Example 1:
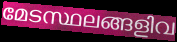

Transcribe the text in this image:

മേടസ്ഥലങ്ങളിവ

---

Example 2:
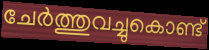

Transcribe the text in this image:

ചേർത്തുവച്ചുകൊണ്ട്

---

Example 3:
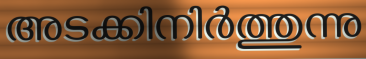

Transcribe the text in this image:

അടക്കിനിർത്തുന്നു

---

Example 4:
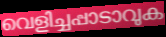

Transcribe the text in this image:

വെളിച്ചപ്പാടാവുക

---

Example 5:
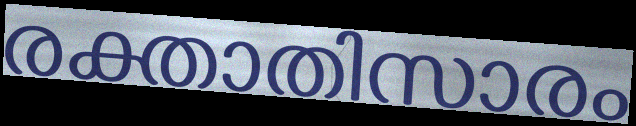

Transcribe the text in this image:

രക്താതിസാരം